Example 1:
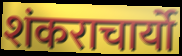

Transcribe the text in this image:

शंकराचार्यो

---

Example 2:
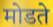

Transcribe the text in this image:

मोडते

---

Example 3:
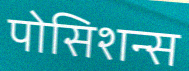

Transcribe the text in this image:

पोसिशन्स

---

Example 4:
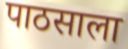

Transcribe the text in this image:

पाठसाला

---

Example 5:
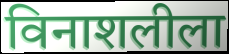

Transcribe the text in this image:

विनाशलीला